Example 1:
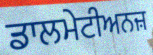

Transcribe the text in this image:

ਡਾਲਮੇਟੀਅਨਜ਼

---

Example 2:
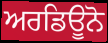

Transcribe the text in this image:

ਅਰਡਿਊਨੋ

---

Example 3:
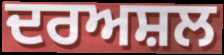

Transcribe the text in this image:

ਦਰਅਸ਼ਲ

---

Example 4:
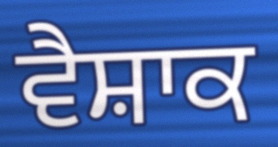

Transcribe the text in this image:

ਵੈਸ਼ਾਕ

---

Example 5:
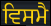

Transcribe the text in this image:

ਵਿਸਮੈ